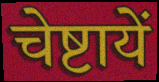
चेष्टायें